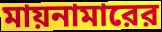
মায়নামারের